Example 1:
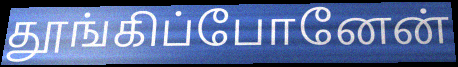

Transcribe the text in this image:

தூங்கிப்போனேன்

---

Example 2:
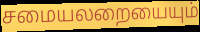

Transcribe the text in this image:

சமையலறையையும்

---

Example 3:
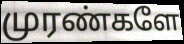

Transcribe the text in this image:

முரண்களே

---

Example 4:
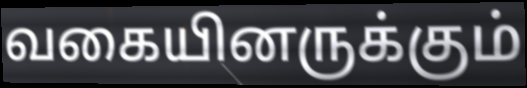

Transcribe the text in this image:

வகையினருக்கும்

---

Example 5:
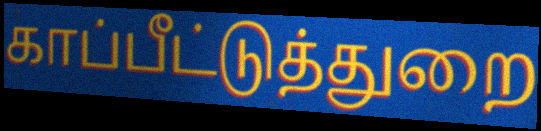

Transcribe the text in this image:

காப்பீட்டுத்துறை